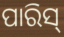
ପାରିସ୍